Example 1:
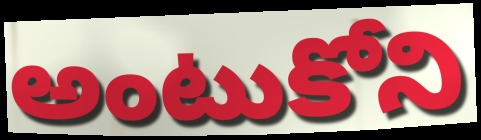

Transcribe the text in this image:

అంటుకోని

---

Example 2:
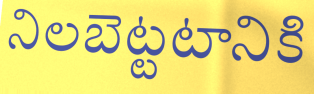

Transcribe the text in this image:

నిలబెట్టటానికి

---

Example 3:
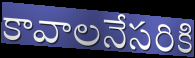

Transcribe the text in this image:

కావాలనేసరికి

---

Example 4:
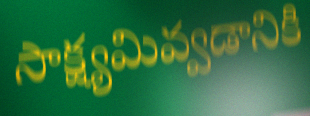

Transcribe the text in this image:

సాక్ష్యమివ్వడానికి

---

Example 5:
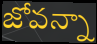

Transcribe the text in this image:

జోవన్నా